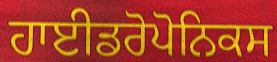
ਹਾਈਡਰੋਪੋਨਿਕਸ